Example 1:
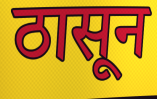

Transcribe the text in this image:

ठासून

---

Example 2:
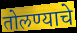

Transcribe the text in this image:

तोलण्याचे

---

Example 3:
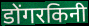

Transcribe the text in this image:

डोंगरकिनी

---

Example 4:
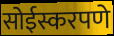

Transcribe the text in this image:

सोईस्करपणे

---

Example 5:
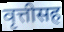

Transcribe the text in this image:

वृत्तीसह